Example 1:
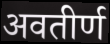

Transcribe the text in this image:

अवतीर्ण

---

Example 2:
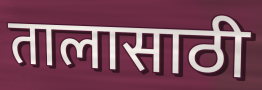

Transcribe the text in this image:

तालासाठी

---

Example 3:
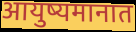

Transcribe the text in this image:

आयुष्यमानात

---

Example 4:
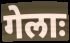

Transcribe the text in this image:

गेलाः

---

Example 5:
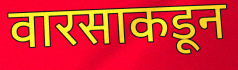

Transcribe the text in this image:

वारसाकडून